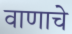
वाणाचे